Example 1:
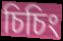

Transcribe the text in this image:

চিচিং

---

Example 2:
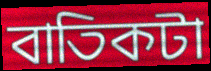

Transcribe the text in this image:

বাতিকটা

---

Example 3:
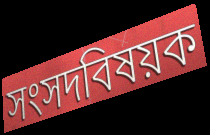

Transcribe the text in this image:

সংসদবিষয়ক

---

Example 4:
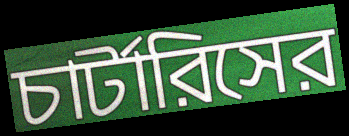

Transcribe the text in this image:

চার্টারিসের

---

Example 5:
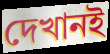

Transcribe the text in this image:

দেখানই